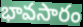
భావసారం